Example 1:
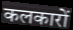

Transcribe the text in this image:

कलकारों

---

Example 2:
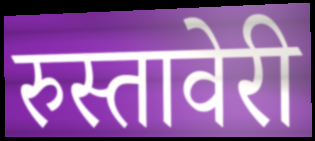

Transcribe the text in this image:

रुस्तावेरी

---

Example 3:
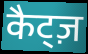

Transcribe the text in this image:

कैट्ज़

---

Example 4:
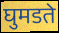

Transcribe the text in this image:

घुमडते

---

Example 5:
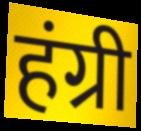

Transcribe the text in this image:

हंग्री